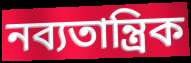
নব্যতান্ত্রিক